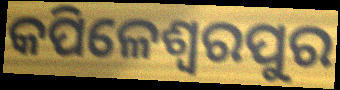
କପିଳେଶ୍ୱରପୁର